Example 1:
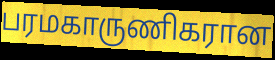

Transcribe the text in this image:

பரமகாருணிகரான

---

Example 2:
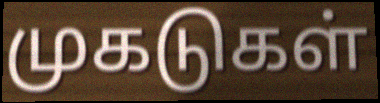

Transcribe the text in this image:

முகடுகள்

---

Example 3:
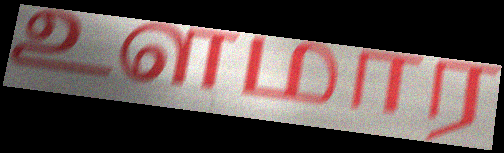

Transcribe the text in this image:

உளமார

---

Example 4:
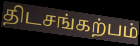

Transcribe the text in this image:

திடசங்கற்பம்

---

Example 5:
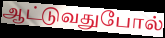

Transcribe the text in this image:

ஆட்டுவதுபோல்